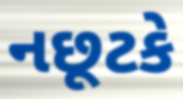
નછૂટકે